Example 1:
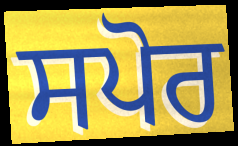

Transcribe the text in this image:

ਸਪੋਰ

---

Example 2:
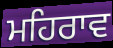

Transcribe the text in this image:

ਮਹਿਰਾਵ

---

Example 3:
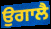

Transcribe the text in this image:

ਉਗਾਲੈ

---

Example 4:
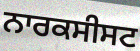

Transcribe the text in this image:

ਨਾਰਕਸੀਸਟ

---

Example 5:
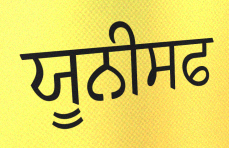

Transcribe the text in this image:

ਯੂਨੀਸਫ